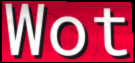
Wot